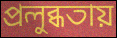
প্রলুব্ধতায়